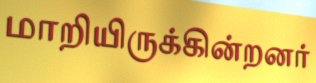
மாறியிருக்கின்றனர்